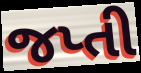
જપ્તી